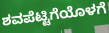
ಶವಪೆಟ್ಟಿಗೆಯೊಳಗೆ